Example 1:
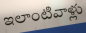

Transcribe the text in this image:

ఇలాంటివాళ్లు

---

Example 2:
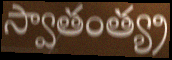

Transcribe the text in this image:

స్వాతంత్య్ర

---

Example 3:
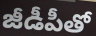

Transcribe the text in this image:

జీడీపీతో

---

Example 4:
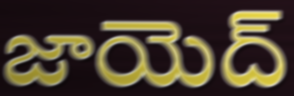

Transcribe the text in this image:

జాయెద్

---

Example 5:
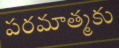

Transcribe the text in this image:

పరమాత్మకు